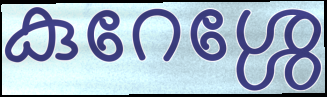
കുറേശ്ശേ